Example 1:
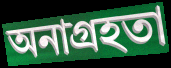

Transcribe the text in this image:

অনাগ্রহতা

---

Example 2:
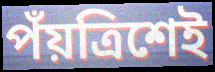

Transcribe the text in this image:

পঁয়ত্রিশেই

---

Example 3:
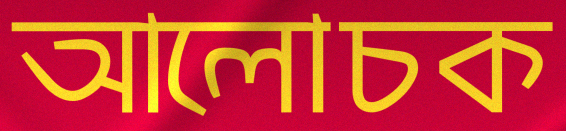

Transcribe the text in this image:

আলোচক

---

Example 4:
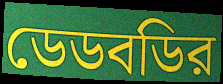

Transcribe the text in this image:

ডেডবডির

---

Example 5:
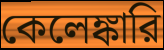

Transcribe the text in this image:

কেলেঙ্কারি